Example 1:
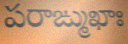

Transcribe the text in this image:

పరాఙ్ముఖాః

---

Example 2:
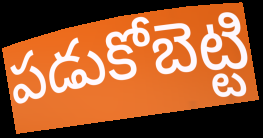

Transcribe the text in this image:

పడుకోబెట్టి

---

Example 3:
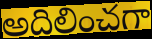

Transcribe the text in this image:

అదిలించగా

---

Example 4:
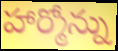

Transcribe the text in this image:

హార్మోన్ను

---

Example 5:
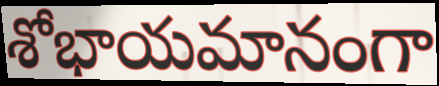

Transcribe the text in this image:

శోభాయమానంగా